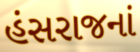
હંસરાજનાં